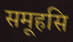
समूहसि